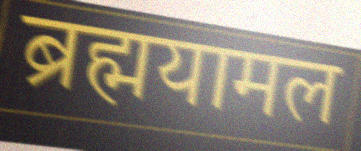
ब्रह्मयामल